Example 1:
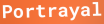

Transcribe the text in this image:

Portrayal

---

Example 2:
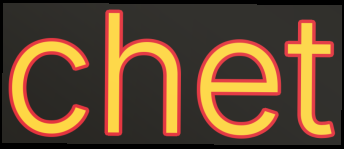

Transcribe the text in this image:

chet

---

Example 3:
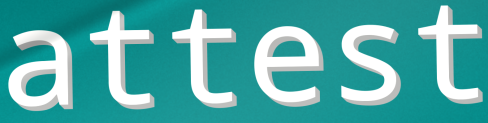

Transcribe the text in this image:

attest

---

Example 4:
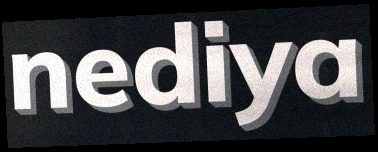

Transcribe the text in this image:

nediya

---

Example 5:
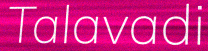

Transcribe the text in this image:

Talavadi